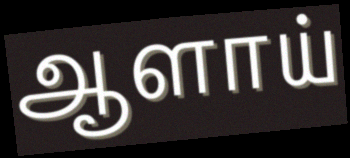
ஆளாய்